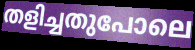
തളിച്ചതുപോലെ